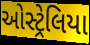
ઓસ્ટ્રેલિયા